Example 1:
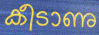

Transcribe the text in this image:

കീടാണു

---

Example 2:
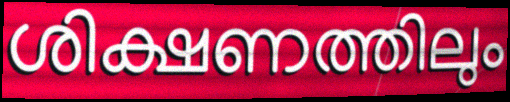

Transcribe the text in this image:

ശിക്ഷണത്തിലും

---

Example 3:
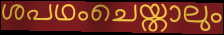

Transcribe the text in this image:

ശപഥംചെയ്താലും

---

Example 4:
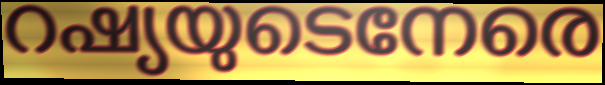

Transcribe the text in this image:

റഷ്യയുടെനേരെ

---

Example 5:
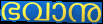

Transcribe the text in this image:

ഭവാനു